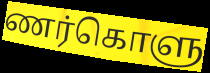
ணர்கொளு